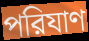
পরিযাণ